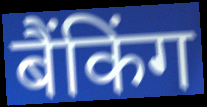
बैंकिंग